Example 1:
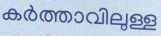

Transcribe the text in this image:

കർത്താവിലുള്ള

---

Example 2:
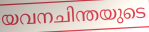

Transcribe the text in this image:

യവനചിന്തയുടെ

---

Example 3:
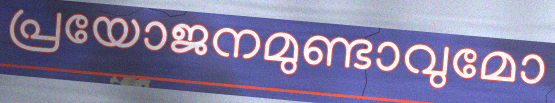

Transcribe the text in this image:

പ്രയോജനമുണ്ടാവുമോ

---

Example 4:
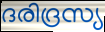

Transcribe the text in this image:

ദരിദ്രസ്യ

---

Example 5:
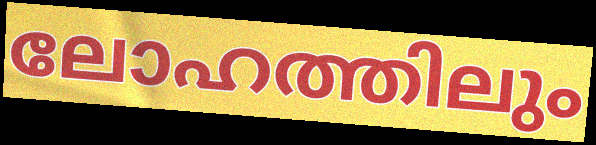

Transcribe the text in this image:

ലോഹത്തിലും